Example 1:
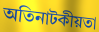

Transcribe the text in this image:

অতিনাটকীয়তা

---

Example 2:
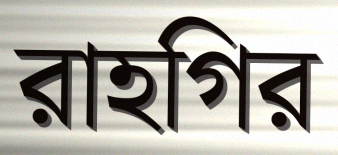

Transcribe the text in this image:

রাহগির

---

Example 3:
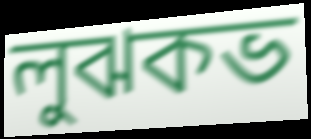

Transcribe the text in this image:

লুঝকভ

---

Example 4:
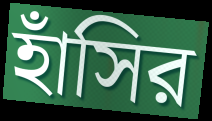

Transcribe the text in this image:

হাঁসির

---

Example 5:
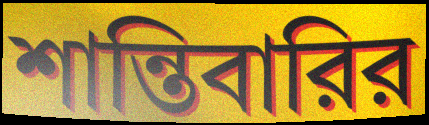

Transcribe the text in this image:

শান্তিবারির